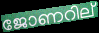
ജോണറില്